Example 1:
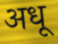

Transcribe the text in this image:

अधू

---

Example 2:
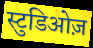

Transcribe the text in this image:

स्टुडिओज़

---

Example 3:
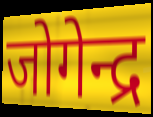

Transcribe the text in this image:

जोगेन्द्र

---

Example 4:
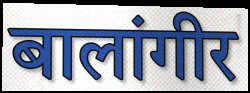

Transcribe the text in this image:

बालांगीर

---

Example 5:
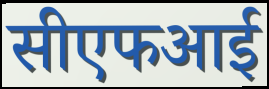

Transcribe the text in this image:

सीएफआई